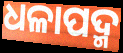
ଧଳାପଦ୍ମ